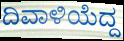
ದಿವಾಳಿಯೆದ್ದ